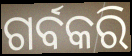
ଗର୍ବକରି